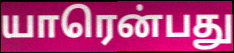
யாரென்பது